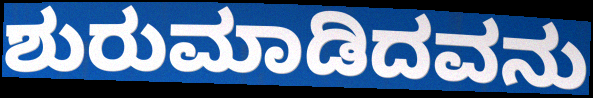
ಶುರುಮಾಡಿದವನು